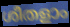
ശീതളാം